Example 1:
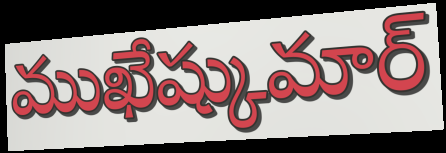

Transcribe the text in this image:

ముఖేష్కుమార్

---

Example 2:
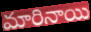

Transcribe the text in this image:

మారినాయి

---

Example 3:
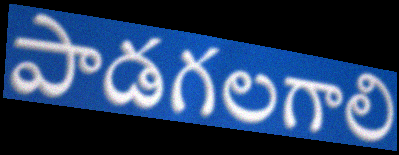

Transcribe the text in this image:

పాడగలగాలి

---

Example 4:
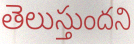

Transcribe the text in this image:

తెలుస్తుందని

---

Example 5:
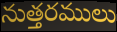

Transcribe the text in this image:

నుత్తరములు